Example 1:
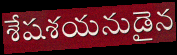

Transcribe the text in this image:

శేషశయనుడైన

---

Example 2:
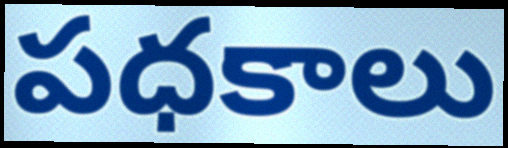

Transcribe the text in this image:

పధకాలు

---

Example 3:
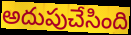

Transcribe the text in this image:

అదుపుచేసింది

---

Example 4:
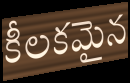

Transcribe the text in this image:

కీలకమైన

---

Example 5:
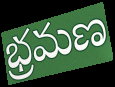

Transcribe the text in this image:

భ్రమణ